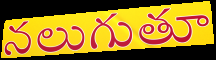
నలుగుతూ